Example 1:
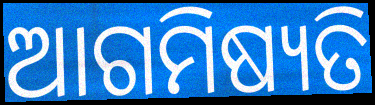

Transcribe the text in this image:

ଆଗମିଷ୍ୟତି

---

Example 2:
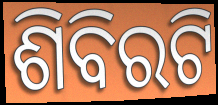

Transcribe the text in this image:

ଶିବିରଟି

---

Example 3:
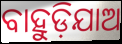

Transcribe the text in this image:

ବାହୁଡ଼ିଯାଅ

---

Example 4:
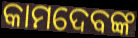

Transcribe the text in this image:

କାମଦେବଙ୍କ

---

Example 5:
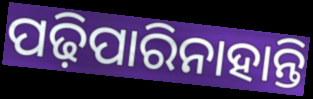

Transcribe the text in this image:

ପଢ଼ିପାରିନାହାନ୍ତି